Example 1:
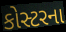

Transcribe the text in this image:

કોસ્ટરના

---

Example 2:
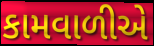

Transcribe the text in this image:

કામવાળીએ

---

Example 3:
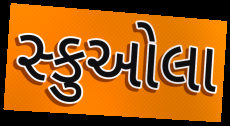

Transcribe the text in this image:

સ્કુઓલા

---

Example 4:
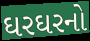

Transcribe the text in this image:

ઘરઘરનો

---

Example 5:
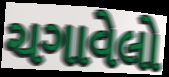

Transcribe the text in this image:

ચગાવેલો